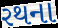
રથના